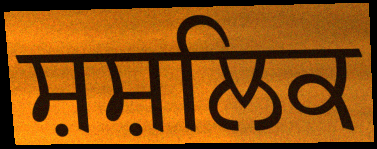
ਸ਼ਸ਼ਲਿਕ